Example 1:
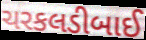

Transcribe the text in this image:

ચરકલડીબાઈ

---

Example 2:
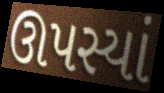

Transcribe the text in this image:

ઊપસ્યાં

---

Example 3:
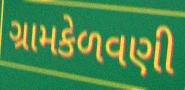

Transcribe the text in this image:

ગ્રામકેળવણી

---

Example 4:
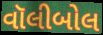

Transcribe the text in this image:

વૉલીબોલ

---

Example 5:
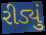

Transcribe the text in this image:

રીડ્યું